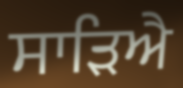
ਸਾੜਿਐ